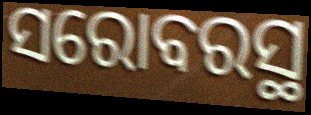
ସରୋବରସ୍ଥ